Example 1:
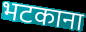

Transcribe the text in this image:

भटकाना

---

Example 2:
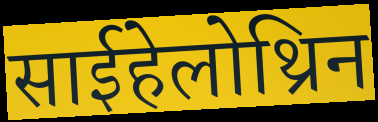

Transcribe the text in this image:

साईहेलोथ्रिन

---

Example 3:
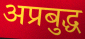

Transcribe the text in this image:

अप्रबुद्ध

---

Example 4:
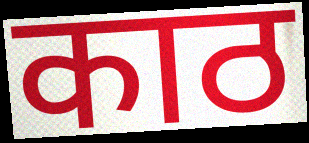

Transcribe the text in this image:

काठ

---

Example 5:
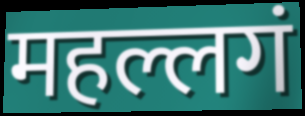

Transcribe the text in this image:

महल्लगं